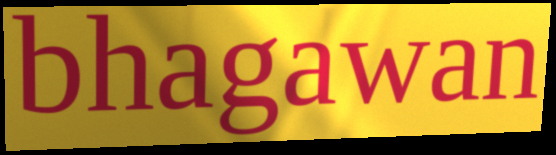
bhagawan